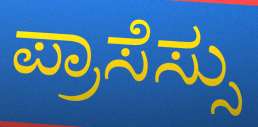
ಪ್ರಾಸೆಸ್ಸು